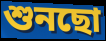
শুনছো